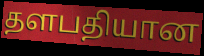
தளபதியான